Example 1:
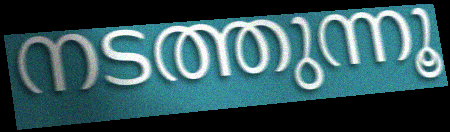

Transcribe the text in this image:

നടത്തുന്നൂ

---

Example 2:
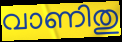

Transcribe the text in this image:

വാണിതു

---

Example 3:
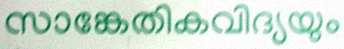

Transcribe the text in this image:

സാങ്കേതികവിദ്യയും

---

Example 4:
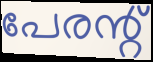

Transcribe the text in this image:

പേരന്റ്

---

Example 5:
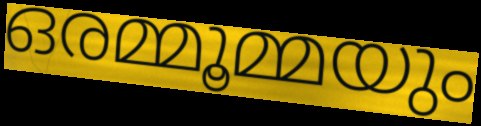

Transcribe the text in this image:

ഒരമ്മൂമ്മയും